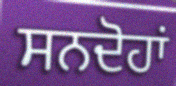
ਸਨਦੋਹਾਂ